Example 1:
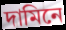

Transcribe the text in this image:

দামিনে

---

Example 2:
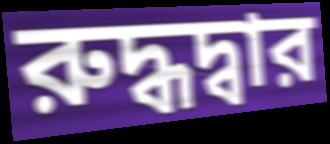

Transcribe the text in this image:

রুদ্ধদ্বার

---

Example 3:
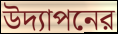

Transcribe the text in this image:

উদ্যাপনের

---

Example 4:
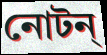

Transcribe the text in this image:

নোটন্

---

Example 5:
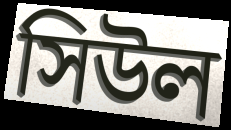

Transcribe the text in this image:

সিউল